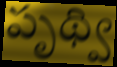
పృథ్వి